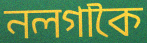
নলগাকৈ